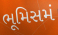
ભૂમિસમં